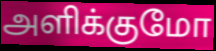
அளிக்குமோ